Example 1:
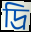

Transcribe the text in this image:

দ্রি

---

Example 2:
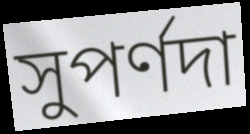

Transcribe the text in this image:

সুপর্ণদা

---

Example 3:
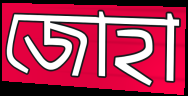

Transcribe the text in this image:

জোহা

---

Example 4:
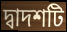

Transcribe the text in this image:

দ্বাদশটি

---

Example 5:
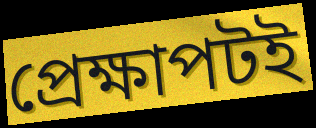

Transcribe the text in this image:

প্রেক্ষাপটই